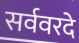
सर्ववरदे